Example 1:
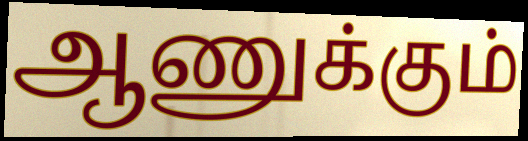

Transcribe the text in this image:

ஆணுக்கும்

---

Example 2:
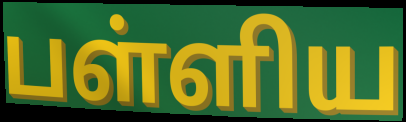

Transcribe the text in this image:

பள்ளிய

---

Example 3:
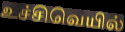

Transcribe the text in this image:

உச்சிவெயில்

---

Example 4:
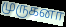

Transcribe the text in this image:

முருகனா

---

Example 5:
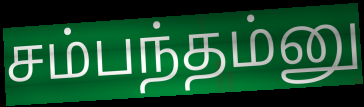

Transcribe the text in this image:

சம்பந்தம்னு